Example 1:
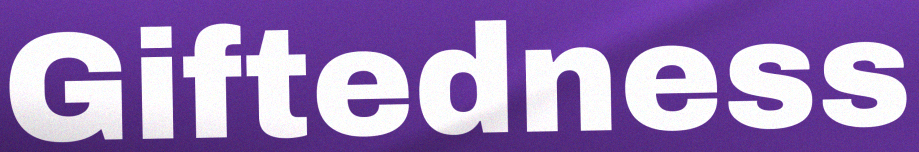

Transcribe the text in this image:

Giftedness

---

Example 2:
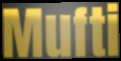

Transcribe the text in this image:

Mufti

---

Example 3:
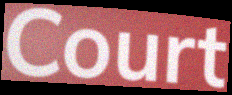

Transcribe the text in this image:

Court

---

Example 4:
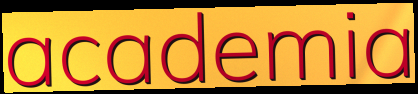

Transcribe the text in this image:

academia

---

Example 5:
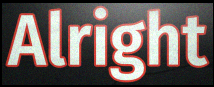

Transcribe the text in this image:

Alright